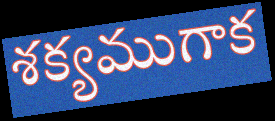
శక్యముగాక